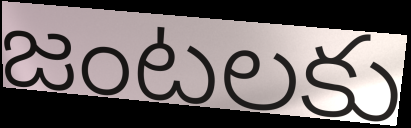
జంటలకు